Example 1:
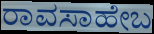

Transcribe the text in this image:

ರಾವಸಾಹೇಬ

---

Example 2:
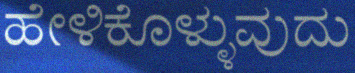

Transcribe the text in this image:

ಹೇಳಿಕೊಳ್ಳುವುದು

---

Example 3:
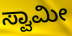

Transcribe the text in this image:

ಸ್ವಾಮೀ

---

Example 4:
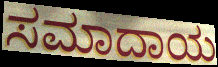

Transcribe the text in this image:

ಸಮಾದಾಯ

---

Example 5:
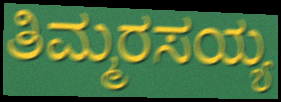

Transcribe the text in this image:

ತಿಮ್ಮರಸಯ್ಯ